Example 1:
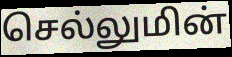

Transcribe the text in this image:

செல்லுமின்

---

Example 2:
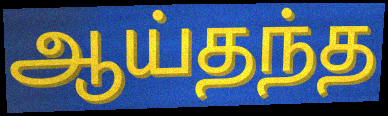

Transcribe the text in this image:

ஆய்தந்த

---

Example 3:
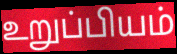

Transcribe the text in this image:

உறுப்பியம்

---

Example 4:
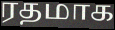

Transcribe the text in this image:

ரதமாக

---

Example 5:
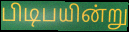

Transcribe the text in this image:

பிடிபயின்று